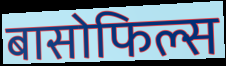
बासोफिल्स